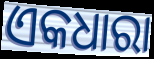
ଏକଧାରା